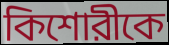
কিশোরীকে